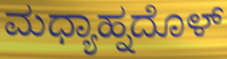
ಮಧ್ಯಾಹ್ನದೊಳ್